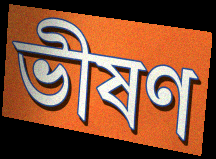
ভীষণ